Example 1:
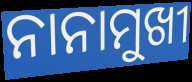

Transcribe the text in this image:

ନାନାମୁଖୀ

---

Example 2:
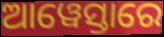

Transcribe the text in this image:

ଆୱେସ୍ତାରେ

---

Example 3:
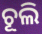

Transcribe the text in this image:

ଚୂଲି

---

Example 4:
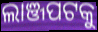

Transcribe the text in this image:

ଲାଞ୍ଜପଟକୁ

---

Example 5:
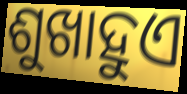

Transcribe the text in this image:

ଶୁଖାହୁଏ